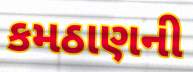
કમઠાણની